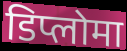
डिप्‍लोमा